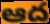
ఆద